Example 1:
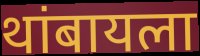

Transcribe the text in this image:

थांबायला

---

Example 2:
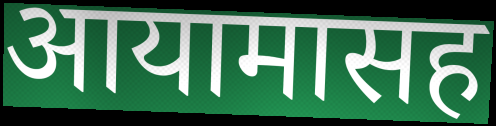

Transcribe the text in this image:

आयामासह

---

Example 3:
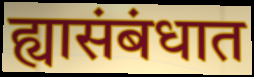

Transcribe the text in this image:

ह्यासंबंधात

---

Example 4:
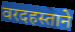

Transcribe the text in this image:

वरदहस्ताने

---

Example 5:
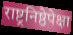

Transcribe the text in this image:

राष्ट्रनिष्ठेपेक्षा